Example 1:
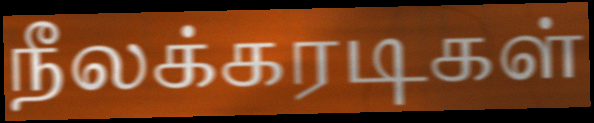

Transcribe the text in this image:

நீலக்கரடிகள்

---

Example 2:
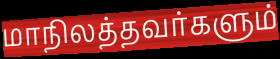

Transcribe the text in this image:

மாநிலத்தவர்களும்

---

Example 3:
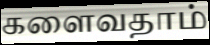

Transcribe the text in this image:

களைவதாம்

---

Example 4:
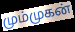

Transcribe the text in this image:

மும்முகன்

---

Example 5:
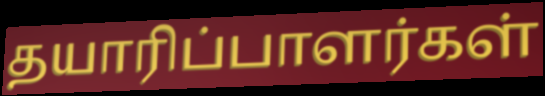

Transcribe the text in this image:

தயாரிப்பாளர்கள்